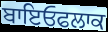
ਬਾਇਓਫਲਾਕ